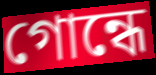
গোন্ধে